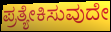
ಪ್ರತ್ಯೇಕಿಸುವುದೇ